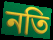
নতি